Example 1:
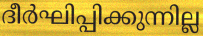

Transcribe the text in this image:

ദീർഘിപ്പിക്കുന്നില്ല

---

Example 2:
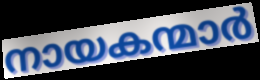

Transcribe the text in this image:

നായകന്മാർ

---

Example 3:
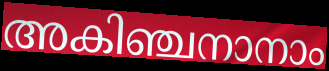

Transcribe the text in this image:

അകിഞ്ചനാനാം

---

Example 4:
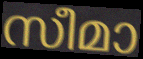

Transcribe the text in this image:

സീമാ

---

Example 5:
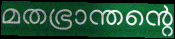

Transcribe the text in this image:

മതഭ്രാന്തന്റെ